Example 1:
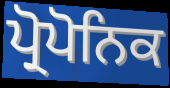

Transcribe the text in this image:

ਪ੍ਰੋਪੋਨਿਕ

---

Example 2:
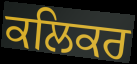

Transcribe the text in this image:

ਕਲਿਕਰ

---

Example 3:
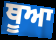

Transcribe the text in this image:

ਥੂਆ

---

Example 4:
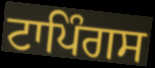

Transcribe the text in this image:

ਟਾਪਿੰਗਸ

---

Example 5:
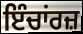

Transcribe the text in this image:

ਇੰਚਾਂਰਜ਼